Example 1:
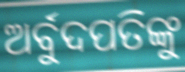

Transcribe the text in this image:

ଅର୍ବୁଦପତିଙ୍କୁ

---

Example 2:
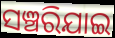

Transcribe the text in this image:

ସଞ୍ଚରିଯାଇ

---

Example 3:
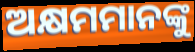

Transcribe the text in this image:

ଅକ୍ଷମମାନଙ୍କୁ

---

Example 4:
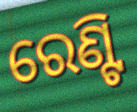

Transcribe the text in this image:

ରେଣ୍ଟି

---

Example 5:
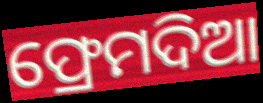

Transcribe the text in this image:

ଫ୍ରେମଦିଆ